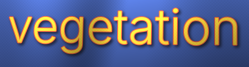
vegetation